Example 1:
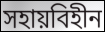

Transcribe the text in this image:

সহায়বিহীন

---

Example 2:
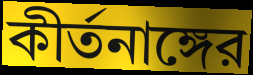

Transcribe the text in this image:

কীর্তনাঙ্গের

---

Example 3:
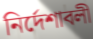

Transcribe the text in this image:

নির্দেশাবলী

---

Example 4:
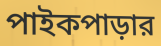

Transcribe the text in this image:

পাইকপাড়ার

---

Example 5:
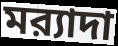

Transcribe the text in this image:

মর‍্যাদা